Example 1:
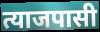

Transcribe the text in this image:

त्याजपासी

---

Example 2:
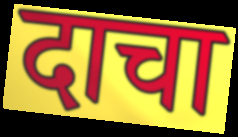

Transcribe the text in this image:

दाचा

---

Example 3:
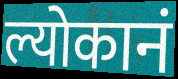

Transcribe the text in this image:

ल्योकानं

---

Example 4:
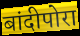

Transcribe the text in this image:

बांदीपोरा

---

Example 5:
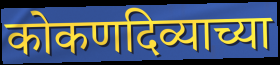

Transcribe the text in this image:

कोकणदिव्याच्या